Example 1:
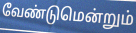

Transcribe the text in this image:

வேண்டுமென்றும்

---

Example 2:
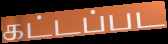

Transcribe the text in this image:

கட்டப்பட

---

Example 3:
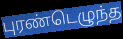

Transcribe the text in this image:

புரண்டெழுந்த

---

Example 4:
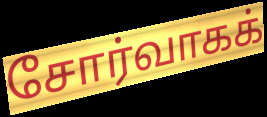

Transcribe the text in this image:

சோர்வாகக்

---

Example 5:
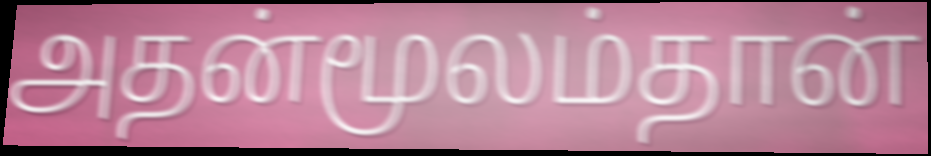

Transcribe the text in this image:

அதன்மூலம்தான்